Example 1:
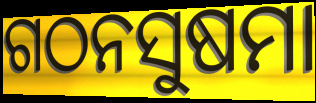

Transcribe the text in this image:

ଗଠନସୁଷମା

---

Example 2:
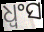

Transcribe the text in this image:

ଧ୍ଵଂସ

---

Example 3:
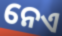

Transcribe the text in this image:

ନେଏ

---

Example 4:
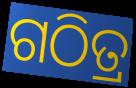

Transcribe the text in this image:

ଗଠିତ୍ର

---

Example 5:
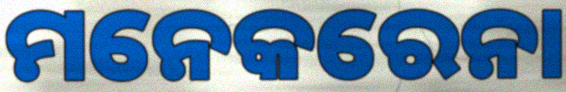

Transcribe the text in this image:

ମନେକରେନା